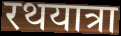
रथयात्रा